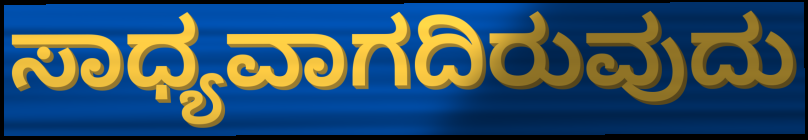
ಸಾಧ್ಯವಾಗದಿರುವುದು